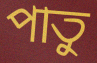
পাতু